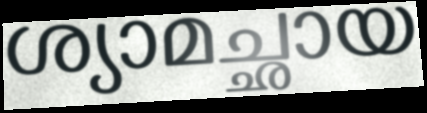
ശ്യാമച്ഛായ